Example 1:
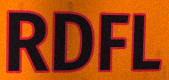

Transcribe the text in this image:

RDFL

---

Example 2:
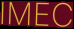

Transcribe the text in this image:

IMEC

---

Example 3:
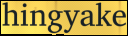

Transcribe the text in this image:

hingyake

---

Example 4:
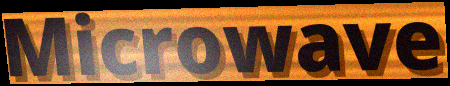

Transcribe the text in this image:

Microwave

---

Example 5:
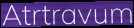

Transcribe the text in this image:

Atrtravum